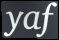
yaf